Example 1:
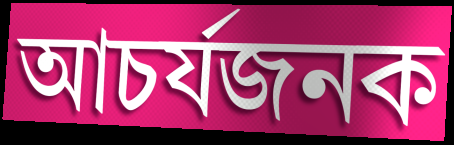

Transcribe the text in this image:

আচৰ্যজনক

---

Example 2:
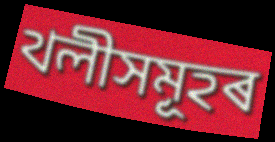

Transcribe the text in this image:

থলীসমূহৰ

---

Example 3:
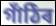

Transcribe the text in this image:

গাঁঠিৰ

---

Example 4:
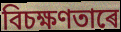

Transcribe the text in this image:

বিচক্ষণতাৰে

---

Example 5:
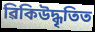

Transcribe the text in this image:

ৱিকিউদ্ধৃতিত